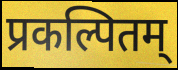
प्रकल्पितम्